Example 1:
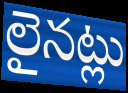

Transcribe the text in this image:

లైనట్లు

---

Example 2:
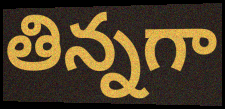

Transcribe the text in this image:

తిన్నగా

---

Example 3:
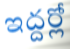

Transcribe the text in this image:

ఇద్దర్లో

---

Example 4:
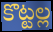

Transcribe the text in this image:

కొట్టల్ల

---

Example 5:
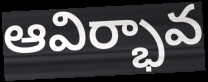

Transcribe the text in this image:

ఆవిర్భావ